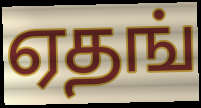
ஏதங்